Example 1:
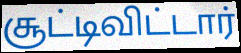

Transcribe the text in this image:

சூட்டிவிட்டார்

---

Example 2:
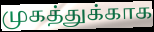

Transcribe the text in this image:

முகத்துக்காக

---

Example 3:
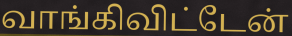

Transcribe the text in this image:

வாங்கிவிட்டேன்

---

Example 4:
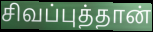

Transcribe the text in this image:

சிவப்புத்தான்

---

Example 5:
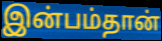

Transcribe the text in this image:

இன்பம்தான்